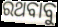
ରଥବାବୁ